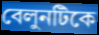
বেলুনটিকে